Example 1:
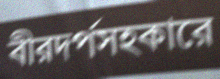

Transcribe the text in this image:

বীরদর্পসহকারে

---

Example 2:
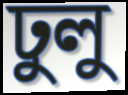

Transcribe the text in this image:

ঢুলু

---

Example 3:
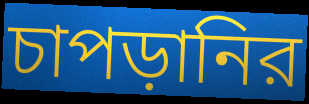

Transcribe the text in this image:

চাপড়ানির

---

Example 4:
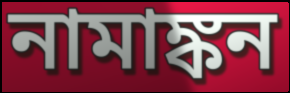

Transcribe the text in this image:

নামাঙ্কন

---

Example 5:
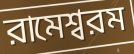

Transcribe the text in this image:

রামেশ্বরম